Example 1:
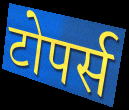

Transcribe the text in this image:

टोपर्स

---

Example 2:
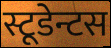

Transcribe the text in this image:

स्टूडेन्टस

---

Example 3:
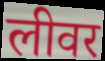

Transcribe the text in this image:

लीवर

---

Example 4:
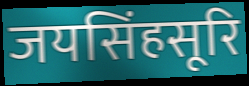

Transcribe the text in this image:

जयसिंहसूरि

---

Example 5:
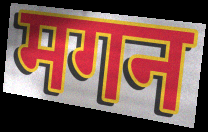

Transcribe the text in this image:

मगन